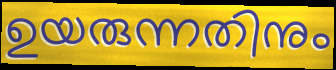
ഉയരുന്നതിനും